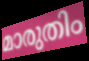
മാരുതിം